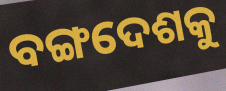
ବଙ୍ଗଦେଶକୁ